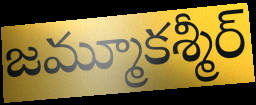
జమ్మూకశ్మీర్